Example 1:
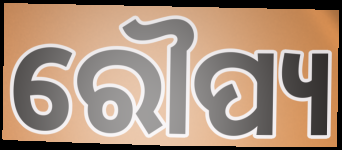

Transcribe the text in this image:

ରୌପ୍ୟ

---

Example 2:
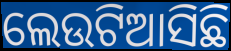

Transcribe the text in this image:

ଲେଉଟିଆସିଛି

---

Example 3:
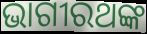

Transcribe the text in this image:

ଭାଗୀରଥଙ୍କ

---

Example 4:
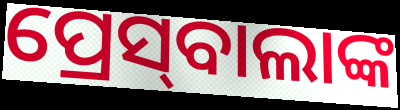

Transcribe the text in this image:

ପ୍ରେସ୍‌ବାଲାଙ୍କ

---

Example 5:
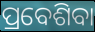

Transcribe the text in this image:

ପ୍ରବେଶିବା